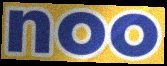
noo